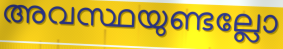
അവസ്ഥയുണ്ടല്ലോ